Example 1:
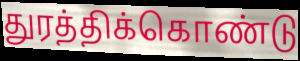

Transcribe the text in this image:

துரத்திக்கொண்டு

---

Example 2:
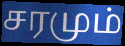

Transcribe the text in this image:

சரமும்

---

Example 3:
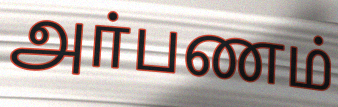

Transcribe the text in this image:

அர்பணம்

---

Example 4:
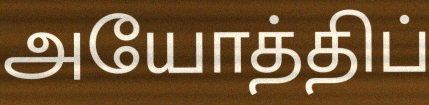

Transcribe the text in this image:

அயோத்திப்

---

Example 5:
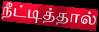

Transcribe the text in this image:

நீட்டித்தால்